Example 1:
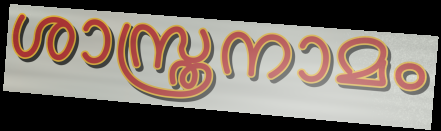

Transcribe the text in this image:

ശാസ്ത്രനാമം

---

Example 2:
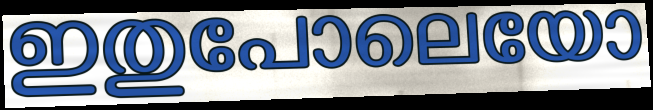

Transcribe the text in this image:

ഇതുപോലെയോ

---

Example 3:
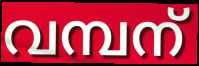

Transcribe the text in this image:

വമ്പന്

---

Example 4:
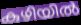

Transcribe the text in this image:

കുഴിയിൽ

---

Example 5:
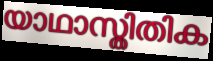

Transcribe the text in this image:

യാഥാസ്തിതിക